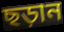
ছড়ান